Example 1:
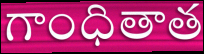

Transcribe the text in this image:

గాంధితాత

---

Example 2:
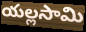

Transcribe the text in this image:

యల్లసామి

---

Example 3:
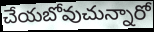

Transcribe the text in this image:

చేయబోవుచున్నారో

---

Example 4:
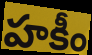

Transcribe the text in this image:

హకీం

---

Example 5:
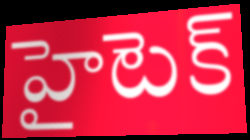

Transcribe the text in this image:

హైటెక్